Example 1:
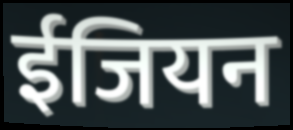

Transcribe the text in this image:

ईजियन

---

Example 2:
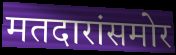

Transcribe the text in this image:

मतदारांसमोर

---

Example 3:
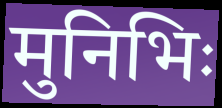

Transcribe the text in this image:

मुनिभिः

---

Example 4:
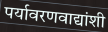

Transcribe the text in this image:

पर्यावरणवाद्यांशी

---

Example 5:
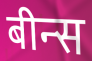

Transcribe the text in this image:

बीन्स